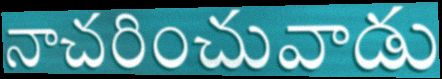
నాచరించువాడు